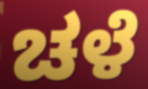
ಚಳೆ